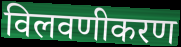
विलवणीकरण